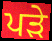
ਪੜੇ